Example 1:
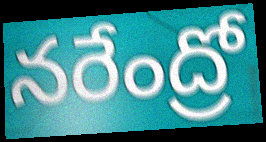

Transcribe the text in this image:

నరేంద్రో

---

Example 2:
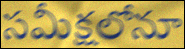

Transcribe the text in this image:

సమీక్షలోనూ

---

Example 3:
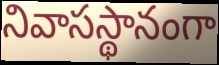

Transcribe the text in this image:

నివాసస్థానంగా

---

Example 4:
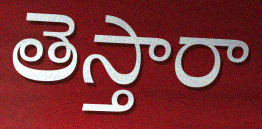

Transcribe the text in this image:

తెస్తారా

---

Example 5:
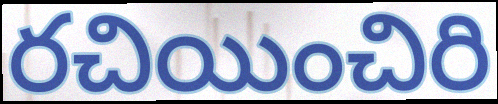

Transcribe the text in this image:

రచియించిరి